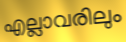
എല്ലാവരിലും